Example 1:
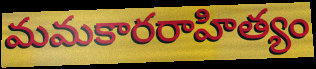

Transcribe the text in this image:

మమకారరాహిత్యం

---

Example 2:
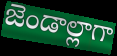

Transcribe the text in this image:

జెండాల్లాగా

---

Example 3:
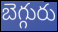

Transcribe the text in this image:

బెగ్గురు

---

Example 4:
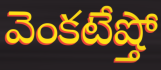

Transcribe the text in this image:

వెంకటేష్తో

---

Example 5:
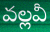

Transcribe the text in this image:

వల్లవీ